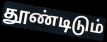
தூண்டிடும்